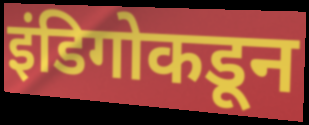
इंडिगोकडून